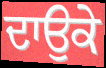
ਦਾਉਕੇ